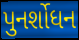
પુનર્શોધન